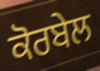
ਕੋਰਬੇਲ